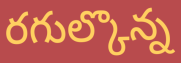
రగుల్కొన్న